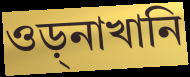
ওড়্নাখানি